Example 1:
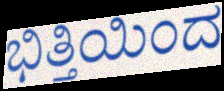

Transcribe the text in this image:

ಭಿತ್ತಿಯಿಂದ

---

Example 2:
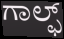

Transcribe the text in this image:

ಗಾಲ್ಫ್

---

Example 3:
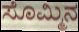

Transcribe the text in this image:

ಸೊಮ್ಮಿನ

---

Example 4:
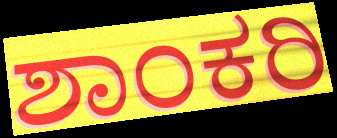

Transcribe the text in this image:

ಶಾಂಕರಿ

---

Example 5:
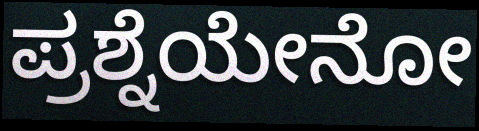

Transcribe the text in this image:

ಪ್ರಶ್ನೆಯೇನೋ